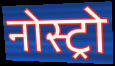
नोस्ट्रो